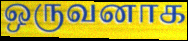
ஒருவனாக